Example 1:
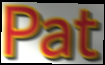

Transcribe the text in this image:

Pat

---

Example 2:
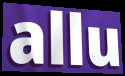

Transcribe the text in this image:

allu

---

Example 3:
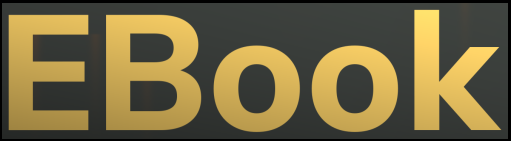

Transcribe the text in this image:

EBook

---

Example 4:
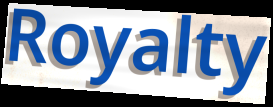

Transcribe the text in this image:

Royalty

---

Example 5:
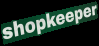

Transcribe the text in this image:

shopkeeper